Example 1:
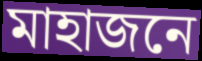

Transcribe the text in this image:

মাহাজনে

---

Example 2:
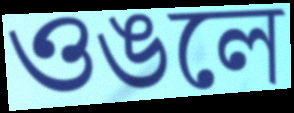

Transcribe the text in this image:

ওঙলে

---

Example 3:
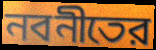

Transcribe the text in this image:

নবনীতের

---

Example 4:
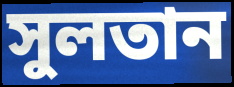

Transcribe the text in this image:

সুলতান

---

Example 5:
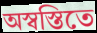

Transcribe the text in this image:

অস্বস্তিতে